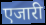
एजारी